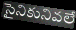
సైనికునివలే